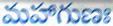
మహాగుణః